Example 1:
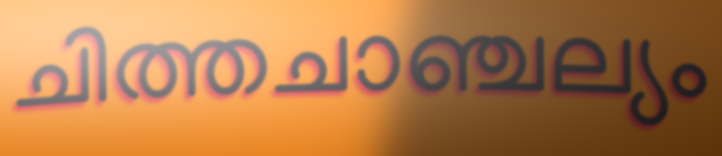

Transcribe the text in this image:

ചിത്തചാഞ്ചല്യം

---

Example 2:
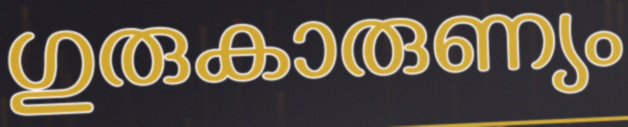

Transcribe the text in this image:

ഗുരുകാരുണ്യം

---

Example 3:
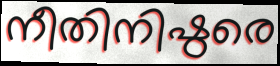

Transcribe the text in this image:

നീതിനിഷ്ഠരെ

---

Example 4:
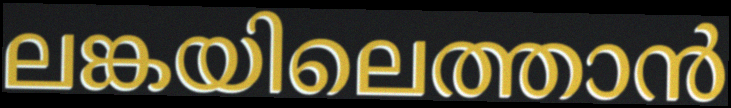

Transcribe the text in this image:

ലങ്കയിലെത്താൻ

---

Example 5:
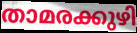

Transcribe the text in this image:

താമരക്കുഴി